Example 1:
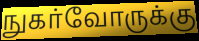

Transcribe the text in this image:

நுகர்வோருக்கு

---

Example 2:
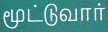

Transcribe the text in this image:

மூட்டுவார்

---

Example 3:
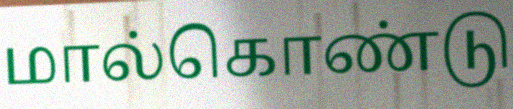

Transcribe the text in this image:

மால்கொண்டு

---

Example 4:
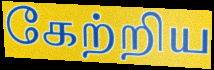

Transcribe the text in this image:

கேற்றிய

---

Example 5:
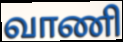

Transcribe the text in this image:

வாணி